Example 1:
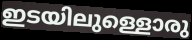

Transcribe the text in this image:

ഇടയിലുള്ളൊരു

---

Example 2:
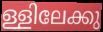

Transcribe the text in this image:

ള്ളിലേക്കു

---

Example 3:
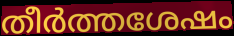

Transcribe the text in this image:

തീർത്തശേഷം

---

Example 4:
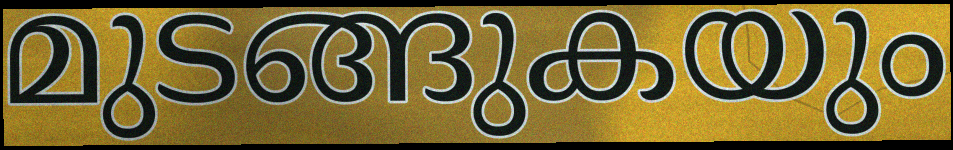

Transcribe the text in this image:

മുടങ്ങുകയും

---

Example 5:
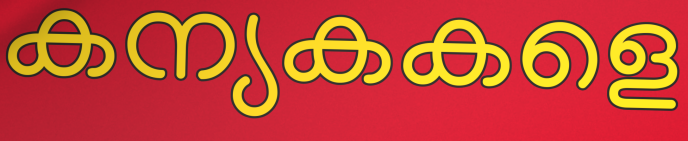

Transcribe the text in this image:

കന്യകകളെ